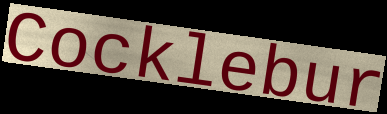
Cocklebur